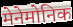
मेनेमोनिक